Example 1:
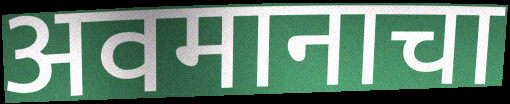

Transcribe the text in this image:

अवमानाचा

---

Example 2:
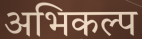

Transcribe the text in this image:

अभिकल्प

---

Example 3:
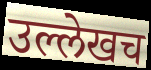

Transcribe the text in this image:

उल्लेखच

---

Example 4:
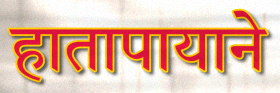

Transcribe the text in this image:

हातापायाने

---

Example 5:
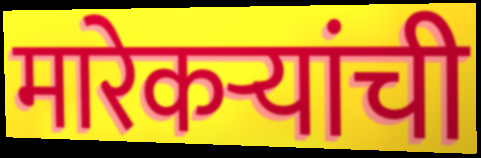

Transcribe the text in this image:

मारेकऱ्यांची